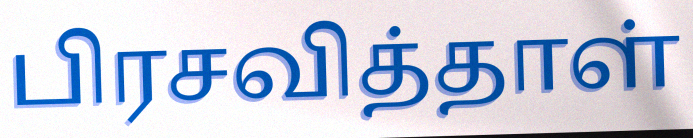
பிரசவித்தாள்